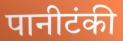
पानीटंकी